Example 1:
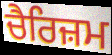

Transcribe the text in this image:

ਚੈਰਿਜ਼ਮ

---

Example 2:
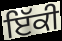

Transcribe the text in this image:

ਇੱਕੀ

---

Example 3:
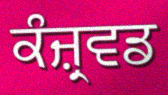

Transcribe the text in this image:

ਕੰਜ਼੍ਰਵਡ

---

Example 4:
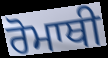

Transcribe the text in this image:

ਰੋਮਾਥੀ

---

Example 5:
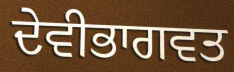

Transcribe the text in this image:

ਦੇਵੀਭਾਗਵਤ